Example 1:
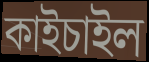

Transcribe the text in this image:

কাইচাইল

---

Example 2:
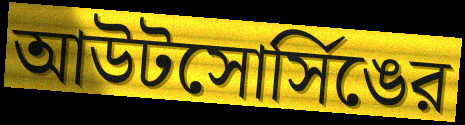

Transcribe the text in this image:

আউটসোর্সিঙের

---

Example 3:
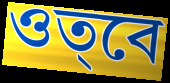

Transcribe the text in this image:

ওত্‌বে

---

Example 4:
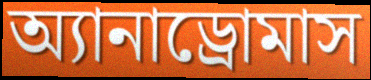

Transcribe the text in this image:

অ্যানাড্রোমাস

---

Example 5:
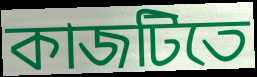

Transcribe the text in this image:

কাজটিতে